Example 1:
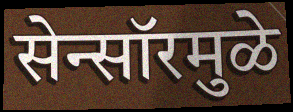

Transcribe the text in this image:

सेन्सॉरमुळे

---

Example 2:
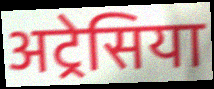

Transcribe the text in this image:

अट्रेसिया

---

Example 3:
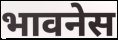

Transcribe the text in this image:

भावनेस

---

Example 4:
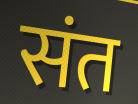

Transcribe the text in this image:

संत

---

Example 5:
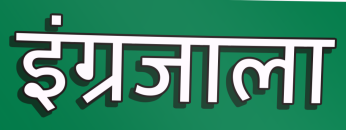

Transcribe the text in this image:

इंग्रजाला